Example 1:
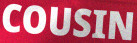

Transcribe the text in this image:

COUSIN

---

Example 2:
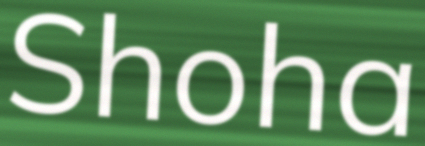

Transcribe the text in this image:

Shoha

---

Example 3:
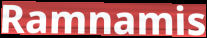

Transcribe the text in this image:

Ramnamis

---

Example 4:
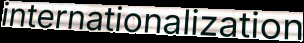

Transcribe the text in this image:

internationalization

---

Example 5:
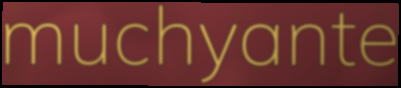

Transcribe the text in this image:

muchyante